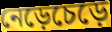
নেড়েচেড়ে